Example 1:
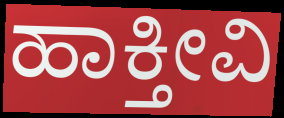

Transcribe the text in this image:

ಹಾಕ್ತೀವಿ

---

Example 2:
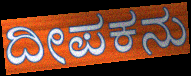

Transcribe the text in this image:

ದೀಪಕನು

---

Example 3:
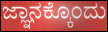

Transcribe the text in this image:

ಜ್ಞಾನಕ್ಕೊಂದು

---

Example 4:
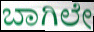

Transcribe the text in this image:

ಬಾಗಿಲೇ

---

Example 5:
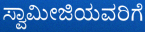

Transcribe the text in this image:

ಸ್ವಾಮೀಜಿಯವರಿಗೆ